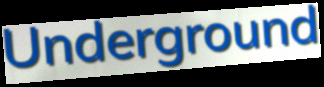
Underground